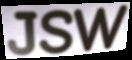
JSW